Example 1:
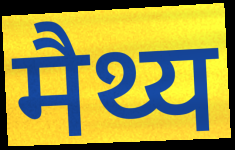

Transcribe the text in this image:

मैथ्य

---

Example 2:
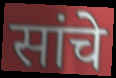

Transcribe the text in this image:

सांचे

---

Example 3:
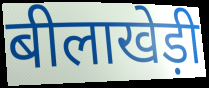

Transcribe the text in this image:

बीलाखेड़ी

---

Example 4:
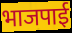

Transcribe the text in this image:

भाजपाई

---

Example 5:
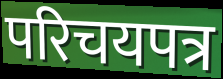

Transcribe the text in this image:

परिचयपत्र